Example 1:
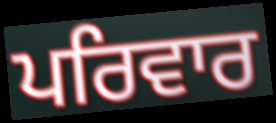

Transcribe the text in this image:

ਪਰਿਵਾਰ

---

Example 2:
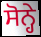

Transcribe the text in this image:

ਸੋਨ੍ਹੇ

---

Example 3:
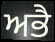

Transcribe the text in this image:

ਅਭੈ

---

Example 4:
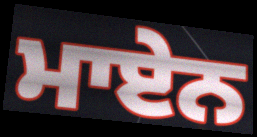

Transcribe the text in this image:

ਮਾਏਨ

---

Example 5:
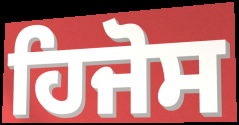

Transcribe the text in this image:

ਹਿਜੋਸ